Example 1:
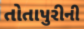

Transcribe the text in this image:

તોતાપુરીની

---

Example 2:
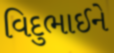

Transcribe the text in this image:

વિદુભાઈને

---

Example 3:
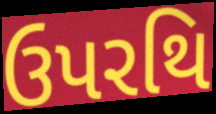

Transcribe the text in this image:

ઉપરથિ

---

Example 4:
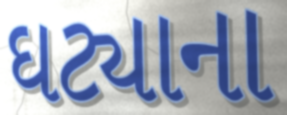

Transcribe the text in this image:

ઘટ્યાના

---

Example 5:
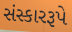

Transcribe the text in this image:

સંસ્કારરૂપે